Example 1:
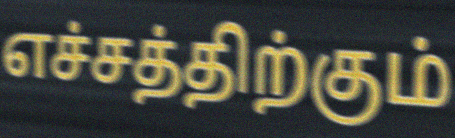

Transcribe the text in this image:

எச்சத்திற்கும்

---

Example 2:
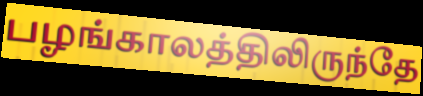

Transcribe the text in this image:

பழங்காலத்திலிருந்தே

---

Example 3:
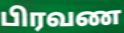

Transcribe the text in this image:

பிரவண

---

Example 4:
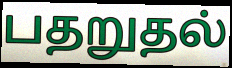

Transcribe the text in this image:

பதறுதல்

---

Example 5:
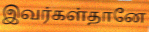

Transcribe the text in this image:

இவர்கள்தானே